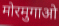
मोरमुगाओ